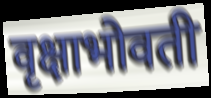
वृक्षाभोवती